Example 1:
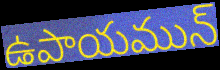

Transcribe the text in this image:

ఉపాయమున్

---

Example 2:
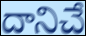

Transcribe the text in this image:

దానిచే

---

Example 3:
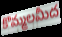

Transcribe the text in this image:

కొమ్మలమీద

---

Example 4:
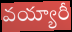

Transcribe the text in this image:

వయ్యారీ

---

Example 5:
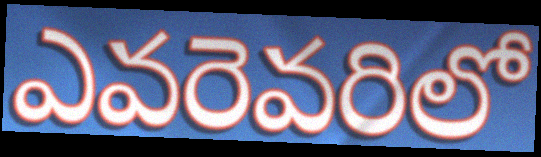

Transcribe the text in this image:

ఎవరెవరిలో